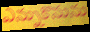
ఎన్నుకొనును